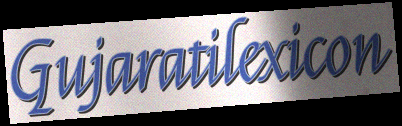
Gujaratilexicon